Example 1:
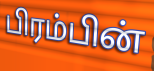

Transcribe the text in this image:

பிரம்பின்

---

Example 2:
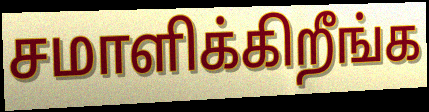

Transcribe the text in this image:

சமாளிக்கிறீங்க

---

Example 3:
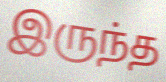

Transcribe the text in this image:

இருந்த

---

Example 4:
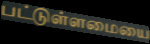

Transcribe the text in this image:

பட்டுள்ளமையை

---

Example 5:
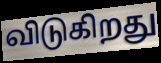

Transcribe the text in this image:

விடுகிறது